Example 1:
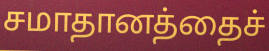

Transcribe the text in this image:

சமாதானத்தைச்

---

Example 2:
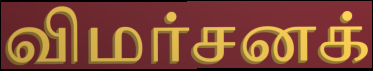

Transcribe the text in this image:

விமர்சனக்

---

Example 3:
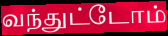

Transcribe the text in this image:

வந்துட்டோம்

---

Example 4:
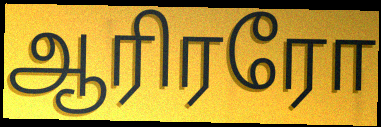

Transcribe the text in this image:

ஆரிரரோ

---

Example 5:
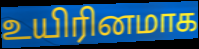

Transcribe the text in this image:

உயிரினமாக